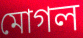
মোগল